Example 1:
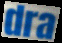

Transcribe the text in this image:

dra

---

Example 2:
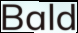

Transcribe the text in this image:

Bald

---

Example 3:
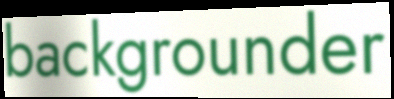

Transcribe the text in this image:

backgrounder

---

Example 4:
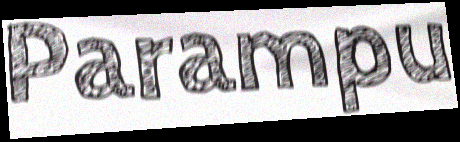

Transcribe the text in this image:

Parampu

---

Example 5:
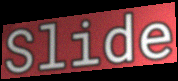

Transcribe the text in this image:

Slide